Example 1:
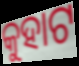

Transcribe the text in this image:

କୁହାଟ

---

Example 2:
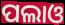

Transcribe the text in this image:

ପଲାଓ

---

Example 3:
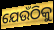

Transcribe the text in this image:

ଯେଉଁଠିକୁ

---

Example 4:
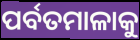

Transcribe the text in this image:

ପର୍ବତମାଳାକୁ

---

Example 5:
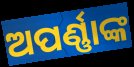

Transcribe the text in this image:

ଅପର୍ଣ୍ଣାଙ୍କ